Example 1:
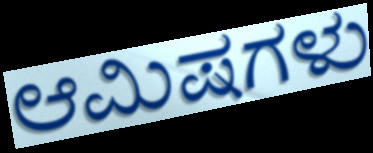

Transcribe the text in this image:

ಆಮಿಷಗಳು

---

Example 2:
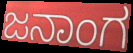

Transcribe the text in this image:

ಜನಾಂಗ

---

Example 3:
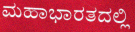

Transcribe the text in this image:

ಮಹಾಭಾರತದಲ್ಲಿ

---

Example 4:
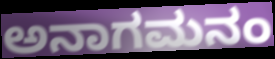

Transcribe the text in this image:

ಅನಾಗಮನಂ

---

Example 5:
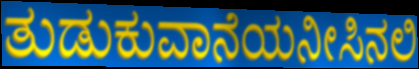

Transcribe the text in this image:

ತುಡುಕುವಾನೆಯನೀಸಿನಲಿ